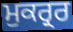
ਮੁਕਰ੍ਰਰ